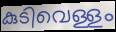
കുടിവെള്ളം